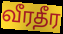
வீரதீர